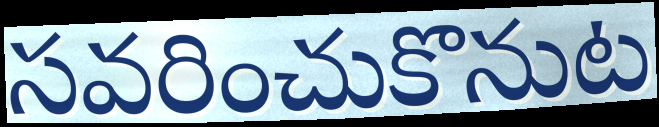
సవరించుకొనుట